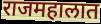
राजमहालात